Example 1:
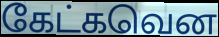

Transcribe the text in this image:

கேட்கவென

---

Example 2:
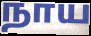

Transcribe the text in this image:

நாய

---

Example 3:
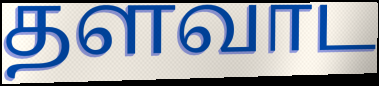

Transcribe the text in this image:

தளவாட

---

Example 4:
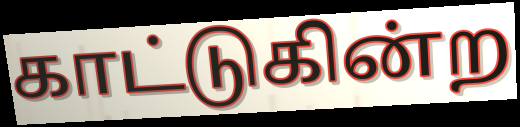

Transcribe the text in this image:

காட்டுகின்ற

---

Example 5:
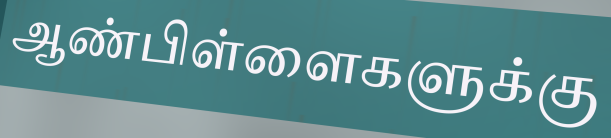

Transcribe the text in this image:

ஆண்பிள்ளைகளுக்கு